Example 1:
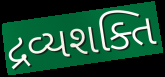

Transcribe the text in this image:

દ્રવ્યશક્તિ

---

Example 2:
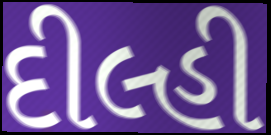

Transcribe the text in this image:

દીલ્હી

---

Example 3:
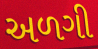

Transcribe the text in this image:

અળગી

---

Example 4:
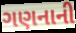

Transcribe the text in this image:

ગણનાની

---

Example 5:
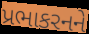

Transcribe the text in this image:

પ્રભાકરનને